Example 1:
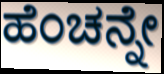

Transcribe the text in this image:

ಹೆಂಚನ್ನೇ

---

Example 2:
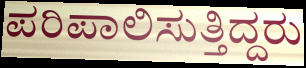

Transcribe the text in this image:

ಪರಿಪಾಲಿಸುತ್ತಿದ್ದರು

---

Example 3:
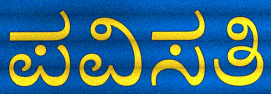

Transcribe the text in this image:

ಪವಿಸತಿ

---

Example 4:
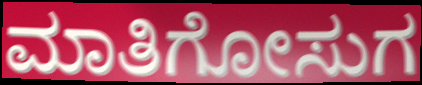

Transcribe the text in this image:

ಮಾತಿಗೋಸುಗ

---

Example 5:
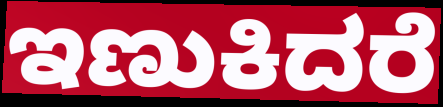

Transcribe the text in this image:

ಇಣುಕಿದರೆ